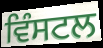
ਵਿੰਸਟਲ